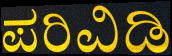
ಪರಿವಿಡಿ